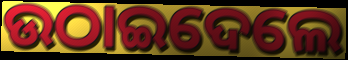
ଉଠାଇଦେଲେ